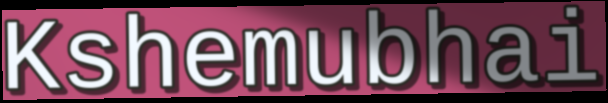
Kshemubhai